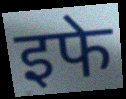
इफे